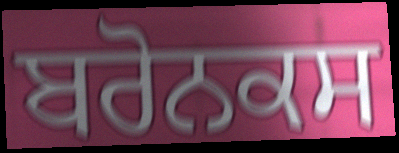
ਬਰੋਨਕਸ